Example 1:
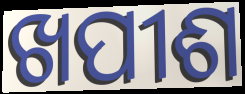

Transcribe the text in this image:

ଖପୀଶ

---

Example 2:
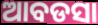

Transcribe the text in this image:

ଆବଡସା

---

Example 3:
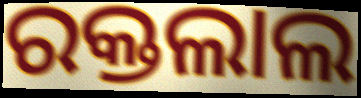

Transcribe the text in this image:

ରକ୍ତଲାଲ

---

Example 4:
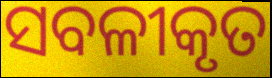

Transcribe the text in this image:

ସବଳୀକୃତ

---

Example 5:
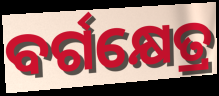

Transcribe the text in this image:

ବର୍ଗକ୍ଷେତ୍ର